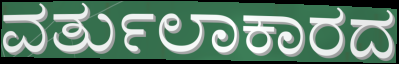
ವರ್ತುಲಾಕಾರದ